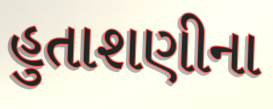
હુતાશણીના